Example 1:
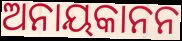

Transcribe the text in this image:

ଅନାୟକାନନ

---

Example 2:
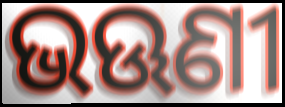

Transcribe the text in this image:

ଭଊଣୀ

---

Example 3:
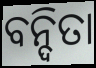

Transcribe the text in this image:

ବନ୍ଦିତା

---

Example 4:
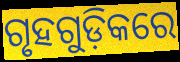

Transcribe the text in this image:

ଗୃହଗୁଡ଼ିକରେ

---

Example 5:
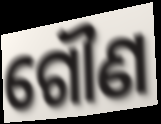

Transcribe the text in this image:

ଗୌଣ